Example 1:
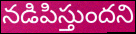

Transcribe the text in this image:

నడిపిస్తుందని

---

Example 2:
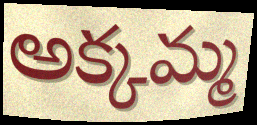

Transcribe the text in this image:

అక్కమ్మ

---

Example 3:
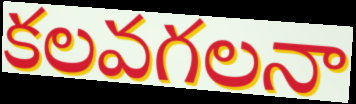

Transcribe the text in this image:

కలవగలనా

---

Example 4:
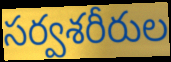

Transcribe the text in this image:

సర్వశరీరుల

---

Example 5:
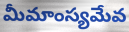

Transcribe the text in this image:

మీమాంస్యమేవ